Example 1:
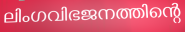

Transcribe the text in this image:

ലിംഗവിഭജനത്തിന്റെ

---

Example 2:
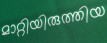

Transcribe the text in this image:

മാറ്റിയിരുത്തിയ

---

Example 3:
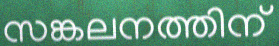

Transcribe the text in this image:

സങ്കലനത്തിന്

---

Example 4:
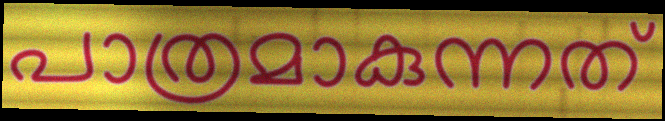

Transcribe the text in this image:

പാത്രമാകുന്നത്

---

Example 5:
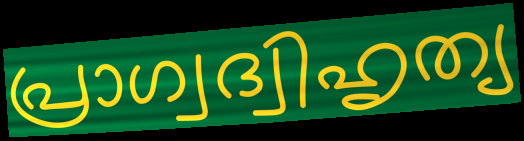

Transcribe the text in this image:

പ്രാഗ്വദ്വിഹൃത്യ